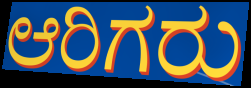
ಆರಿಗರು